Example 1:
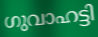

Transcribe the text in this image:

ഗുവാഹട്ടി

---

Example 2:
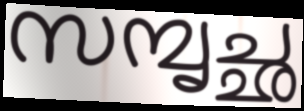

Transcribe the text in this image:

സമ്പൃച്ഛ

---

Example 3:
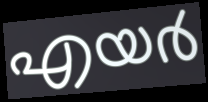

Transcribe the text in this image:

എയർ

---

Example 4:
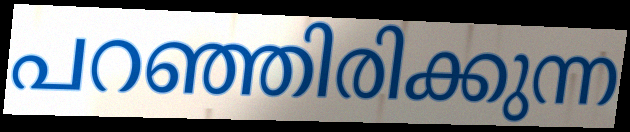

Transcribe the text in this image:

പറഞ്ഞിരിക്കുന്ന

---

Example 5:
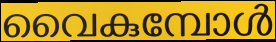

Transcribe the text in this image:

വൈകുമ്പോൾ